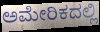
ಅಮೇರಿಕದಲ್ಲಿ